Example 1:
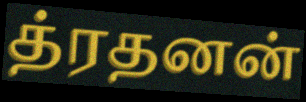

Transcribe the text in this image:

த்ரதனன்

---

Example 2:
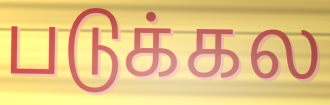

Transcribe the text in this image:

படுக்கல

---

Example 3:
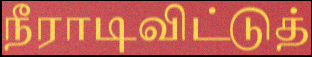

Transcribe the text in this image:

நீராடிவிட்டுத்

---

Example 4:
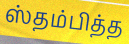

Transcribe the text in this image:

ஸ்தம்பித்த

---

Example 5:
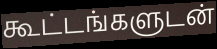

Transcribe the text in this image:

கூட்டங்களுடன்